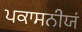
ਪਕਾਸਨੀਯਂ